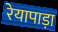
रेयापाड़ा